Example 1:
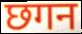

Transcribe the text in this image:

छगन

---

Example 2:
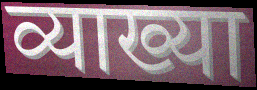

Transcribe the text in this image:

व्याख्या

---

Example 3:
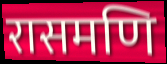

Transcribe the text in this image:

रासमणि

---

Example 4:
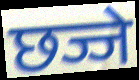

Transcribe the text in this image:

छज्जे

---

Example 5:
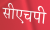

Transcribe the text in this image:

सीएचपी